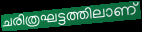
ചരിത്രഘട്ടത്തിലാണ്